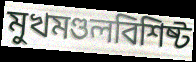
মুখমণ্ডলবিশিষ্ট